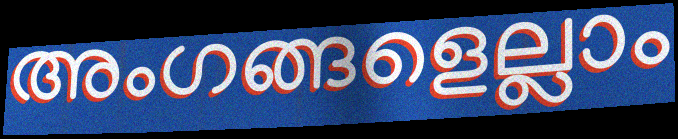
അംഗങ്ങളെല്ലാം